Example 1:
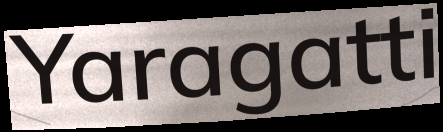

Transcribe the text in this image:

Yaragatti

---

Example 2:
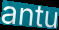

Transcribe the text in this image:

antu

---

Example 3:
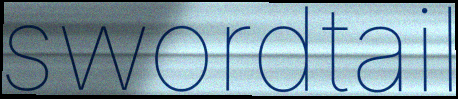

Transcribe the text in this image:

swordtail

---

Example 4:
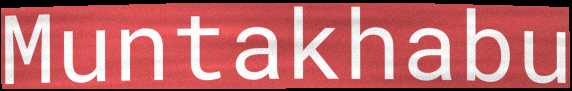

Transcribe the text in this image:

Muntakhabu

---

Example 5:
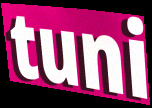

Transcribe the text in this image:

tuni